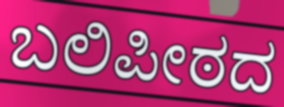
ಬಲಿಪೀಠದ